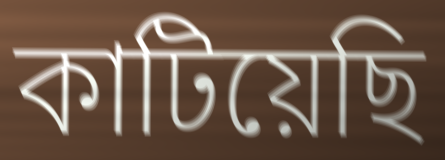
কাটিয়েছি